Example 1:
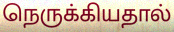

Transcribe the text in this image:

நெருக்கியதால்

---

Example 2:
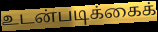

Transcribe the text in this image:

உடன்படிக்கைக்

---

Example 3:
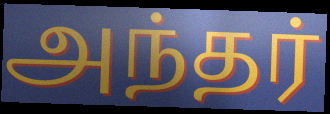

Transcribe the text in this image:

அந்தர்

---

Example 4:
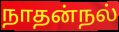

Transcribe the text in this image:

நாதன்நல்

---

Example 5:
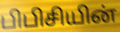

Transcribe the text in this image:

பிபிசியின்